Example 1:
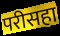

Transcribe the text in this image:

परीसहा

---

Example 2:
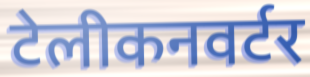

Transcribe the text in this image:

टेलीकनवर्टर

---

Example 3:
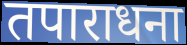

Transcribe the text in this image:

तपाराधना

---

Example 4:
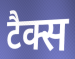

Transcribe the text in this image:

टैक्स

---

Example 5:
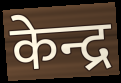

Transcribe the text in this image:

केन्‍द्र